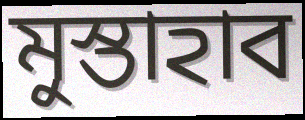
মুস্তাহাব